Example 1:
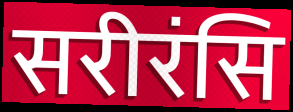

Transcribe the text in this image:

सरीरंसि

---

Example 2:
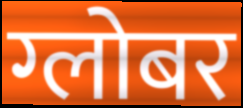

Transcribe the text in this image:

ग्लोबर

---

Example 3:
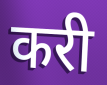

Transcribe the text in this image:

करी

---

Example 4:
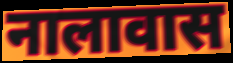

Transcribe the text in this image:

नालावास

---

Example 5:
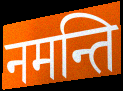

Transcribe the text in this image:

नमन्ति